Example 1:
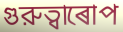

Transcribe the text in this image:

গুৰুত্বাৰোপ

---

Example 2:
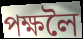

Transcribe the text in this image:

পক্ষলৈ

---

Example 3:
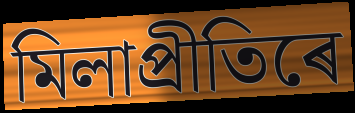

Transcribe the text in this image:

মিলাপ্ৰীতিৰে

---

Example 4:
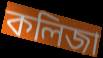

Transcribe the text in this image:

কলিজা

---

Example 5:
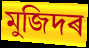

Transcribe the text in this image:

মুজিদৰ